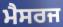
ਮੈਸਰਜ